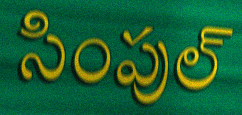
సింపుల్